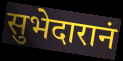
सुभेदारानं